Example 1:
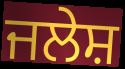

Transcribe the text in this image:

ਜਲੇਸ਼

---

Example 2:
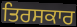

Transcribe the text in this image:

ਤਿਰਸਕਾਰ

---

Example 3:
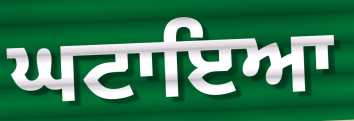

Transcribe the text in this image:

ਘਟਾਇਆ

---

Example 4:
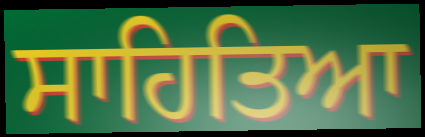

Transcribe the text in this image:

ਸਾਹਿਤਿਆ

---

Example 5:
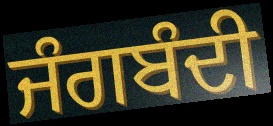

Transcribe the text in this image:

ਜੰਗਬੰਦੀ